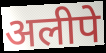
अलीपे